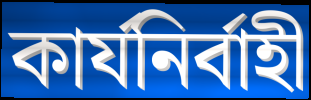
কার্যনির্বাহী